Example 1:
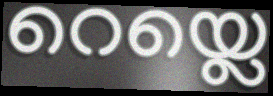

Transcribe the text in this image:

റെയ്ലെ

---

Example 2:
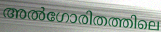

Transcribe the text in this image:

അൽഗോരിതത്തിലെ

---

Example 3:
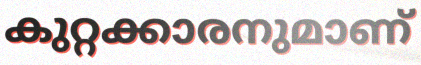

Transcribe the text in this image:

കുറ്റക്കാരനുമാണ്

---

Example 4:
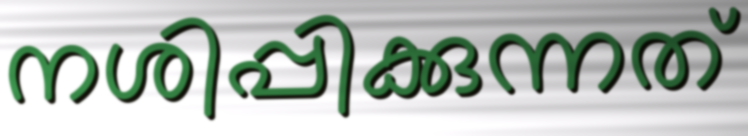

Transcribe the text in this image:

നശിപ്പിക്കുന്നത്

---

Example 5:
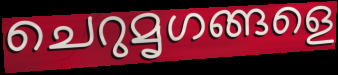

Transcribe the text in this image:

ചെറുമൃഗങ്ങളെ